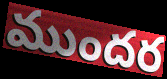
ముందర